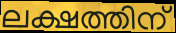
ലക്ഷത്തിന്